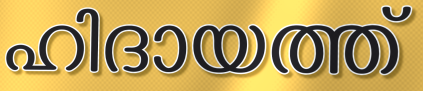
ഹിദായത്ത്